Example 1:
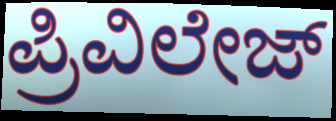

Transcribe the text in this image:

ಪ್ರಿವಿಲೇಜ್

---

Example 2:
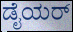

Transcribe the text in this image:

ಡೈಯರ್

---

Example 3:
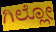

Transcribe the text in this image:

ಗಿಲ್ಲೋ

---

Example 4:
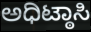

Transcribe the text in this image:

ಅಧಿಟ್ಠಾಸಿ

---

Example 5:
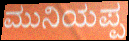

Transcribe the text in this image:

ಮುನಿಯಪ್ಪ